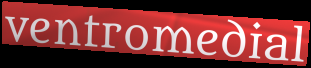
ventromedial